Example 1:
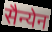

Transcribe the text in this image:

सैन्येन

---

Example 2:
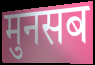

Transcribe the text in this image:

मुनसब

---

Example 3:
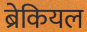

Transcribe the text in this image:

ब्रेकियल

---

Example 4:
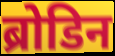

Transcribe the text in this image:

ब्रोडिन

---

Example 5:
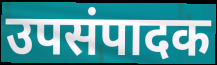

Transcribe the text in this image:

उपसंपादक